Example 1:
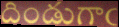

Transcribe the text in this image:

దిండుగాఁ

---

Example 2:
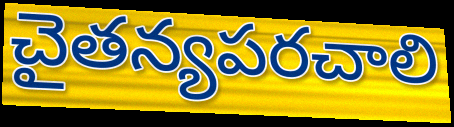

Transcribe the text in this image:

చైతన్యపరచాలి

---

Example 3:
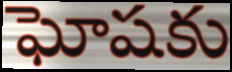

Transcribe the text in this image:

ఘోషకు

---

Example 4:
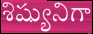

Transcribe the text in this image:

శిష్యునిగా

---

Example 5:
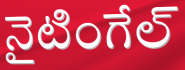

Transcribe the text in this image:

నైటింగేల్